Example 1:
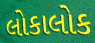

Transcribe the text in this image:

લોકાલોક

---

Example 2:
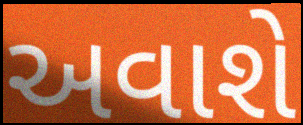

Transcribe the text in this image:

અવાશે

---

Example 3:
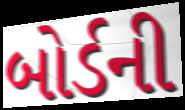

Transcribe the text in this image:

બોર્ડની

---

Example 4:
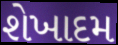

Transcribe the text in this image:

શેખાદમ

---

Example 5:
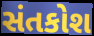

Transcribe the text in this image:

સંતકોશ